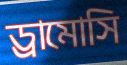
ড্রামোসি